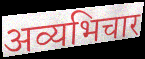
अव्यभिचार